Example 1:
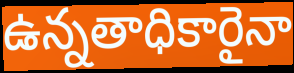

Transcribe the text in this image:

ఉన్నతాధికారైనా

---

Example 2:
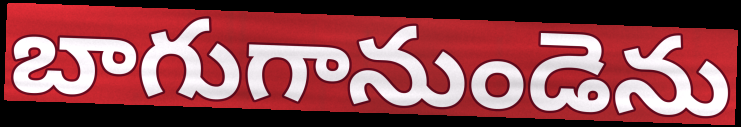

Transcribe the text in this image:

బాగుగానుండెను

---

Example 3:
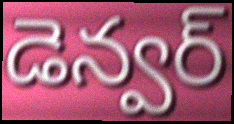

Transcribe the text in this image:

డెన్వర్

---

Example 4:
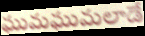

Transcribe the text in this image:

ఘుమఘుమలాడే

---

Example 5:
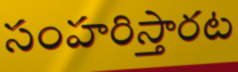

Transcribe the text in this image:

సంహరిస్తారట